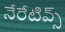
నేరేటివ్స్